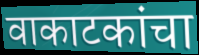
वाकाटकांचा